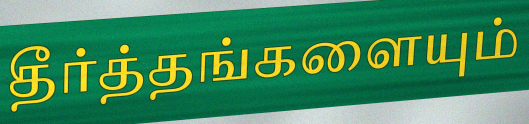
தீர்த்தங்களையும்